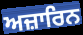
ਅਜ਼ਾਰਿਨ